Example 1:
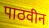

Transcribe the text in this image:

पाठवीन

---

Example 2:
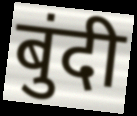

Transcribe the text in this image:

बुंदी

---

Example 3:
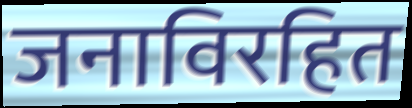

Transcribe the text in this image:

जनाविरहित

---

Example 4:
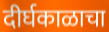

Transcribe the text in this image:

दीर्घकाळाचा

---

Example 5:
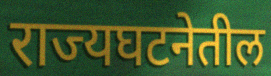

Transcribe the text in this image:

राज्यघटनेतील